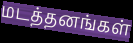
மடத்தனங்கள்